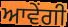
ਆਵੇਂਗੀ